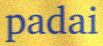
padai